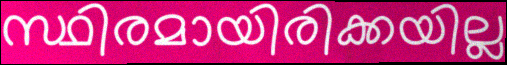
സ്ഥിരമായിരിക്കയില്ല